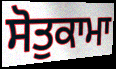
ਸੋਤੁਕਾਮਾ